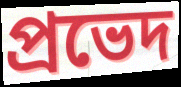
প্ৰভেদ